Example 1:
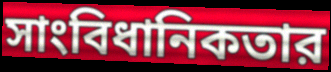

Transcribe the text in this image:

সাংবিধানিকতার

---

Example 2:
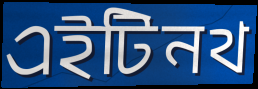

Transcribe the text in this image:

এইটিনথ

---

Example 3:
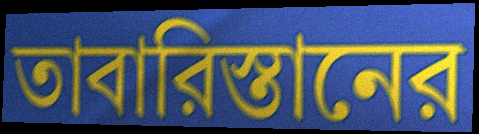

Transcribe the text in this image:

তাবারিস্তানের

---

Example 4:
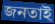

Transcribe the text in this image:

জনতাই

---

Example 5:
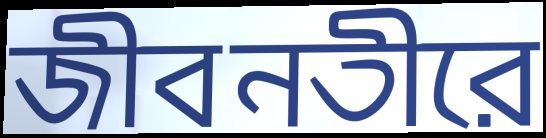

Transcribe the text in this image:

জীবনতীরে